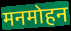
मनमोहन